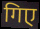
गिए